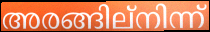
അരങ്ങില്നിന്ന്